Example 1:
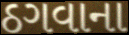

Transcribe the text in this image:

ઠગવાના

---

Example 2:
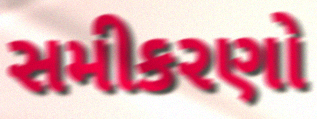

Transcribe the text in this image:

સમીકરણો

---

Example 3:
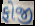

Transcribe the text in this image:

ફોજી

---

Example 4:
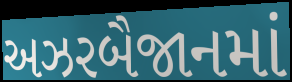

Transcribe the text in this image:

અઝરબૈજાનમાં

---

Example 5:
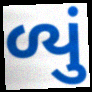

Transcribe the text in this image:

ળ્યું